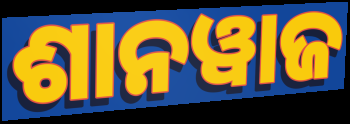
ଶାନୱାଜ